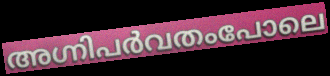
അഗ്നിപർവതംപോലെ